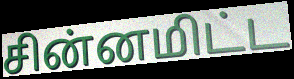
சின்னமிட்ட